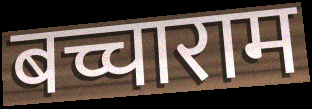
बच्चाराम